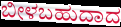
ಬೀಳಬಹುದಾದ